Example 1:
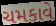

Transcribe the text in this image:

ચમકાવે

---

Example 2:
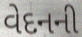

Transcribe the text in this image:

વેદનની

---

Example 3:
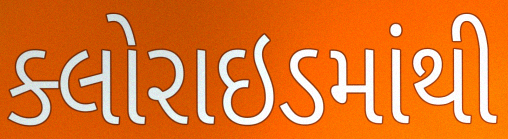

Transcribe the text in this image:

ક્લોરાઇડમાંથી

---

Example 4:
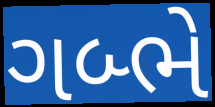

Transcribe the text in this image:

ગબ્ભે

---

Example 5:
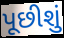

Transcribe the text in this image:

પૂછીશું